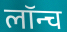
लॉन्च